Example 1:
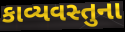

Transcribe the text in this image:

કાવ્યવસ્તુના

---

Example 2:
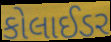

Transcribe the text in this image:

કોલાઈડર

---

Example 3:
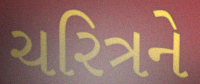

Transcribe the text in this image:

ચરિત્રને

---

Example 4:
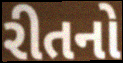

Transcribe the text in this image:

રીતનો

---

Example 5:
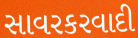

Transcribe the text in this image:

સાવરકરવાદી